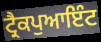
ਟ੍ਰੈਕਪੁਆਇੰਟ